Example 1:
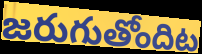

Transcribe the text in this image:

జరుగుతోందిట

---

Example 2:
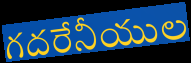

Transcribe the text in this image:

గదరేనీయుల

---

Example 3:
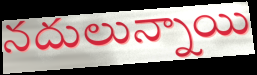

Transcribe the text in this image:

నదులున్నాయి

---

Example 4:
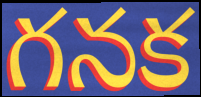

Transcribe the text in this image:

గనక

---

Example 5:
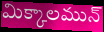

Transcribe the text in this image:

మిక్కాలమున్